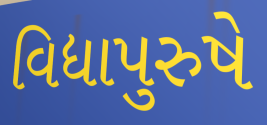
વિદ્યાપુરુષે